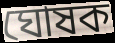
ঘোষক